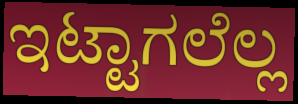
ಇಟ್ಟಾಗಲೆಲ್ಲ